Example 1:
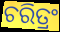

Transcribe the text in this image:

ଚରିତ୍ରଂ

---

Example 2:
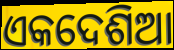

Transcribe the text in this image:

ଏକଦେଶିଆ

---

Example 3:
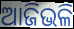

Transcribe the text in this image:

ଆଜିଭଳି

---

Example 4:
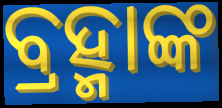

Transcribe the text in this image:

ବ୍ରହ୍ମାଙ୍କ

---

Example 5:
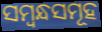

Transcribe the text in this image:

ସମ୍ୱନ୍ଧସମୂହ